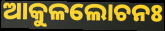
ଆକୁଳଲୋଚନଃ